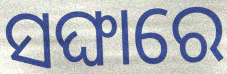
ସଙ୍ଘାରେ